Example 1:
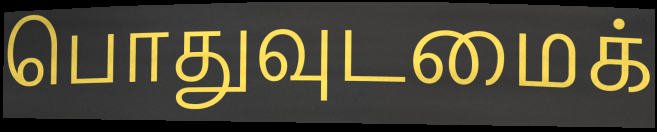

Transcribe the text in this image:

பொதுவுடமைக்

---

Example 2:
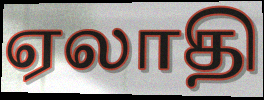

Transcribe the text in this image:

ஏலாதி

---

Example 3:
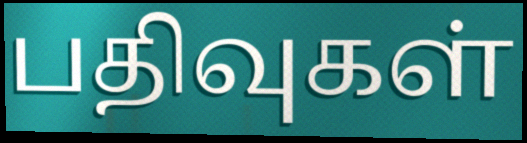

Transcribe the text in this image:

பதிவுகள்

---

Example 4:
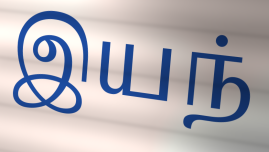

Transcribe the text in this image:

இயந்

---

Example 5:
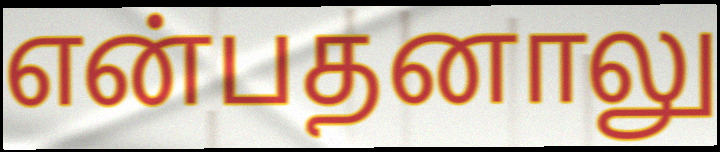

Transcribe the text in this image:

என்பதனாலு